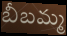
బీబమ్మ